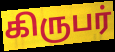
கிருபர்